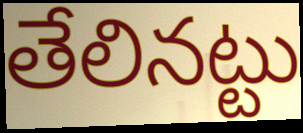
తేలినట్టు